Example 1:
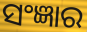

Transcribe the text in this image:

ସଂଜ୍ଞାର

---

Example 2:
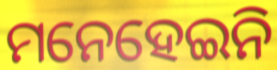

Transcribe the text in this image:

ମନେହେଇନି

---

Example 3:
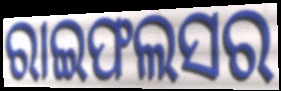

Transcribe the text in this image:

ରାଇଫଲସର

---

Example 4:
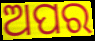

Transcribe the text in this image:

ଅପର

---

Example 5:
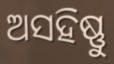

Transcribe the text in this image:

ଅସହିଷ୍ଣୁ